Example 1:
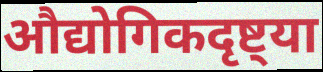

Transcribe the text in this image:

औद्योगिकदृष्ट्या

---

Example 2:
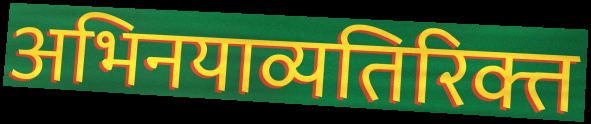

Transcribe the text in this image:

अभिनयाव्यतिरिक्त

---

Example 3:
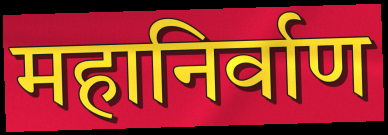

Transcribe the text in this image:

महानिर्वाण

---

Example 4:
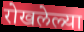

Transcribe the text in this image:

रोखलेल्या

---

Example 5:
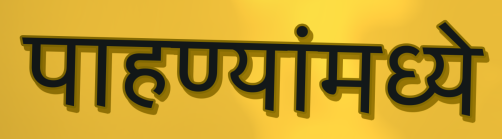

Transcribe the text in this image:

पाहण्यांमध्ये